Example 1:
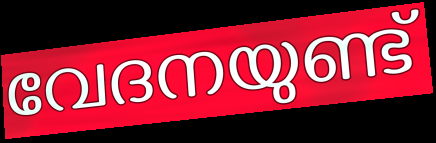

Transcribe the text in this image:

വേദനയുണ്ട്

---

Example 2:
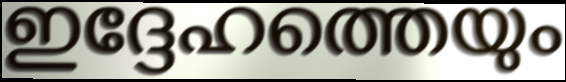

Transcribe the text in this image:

ഇദ്ദേഹത്തെയും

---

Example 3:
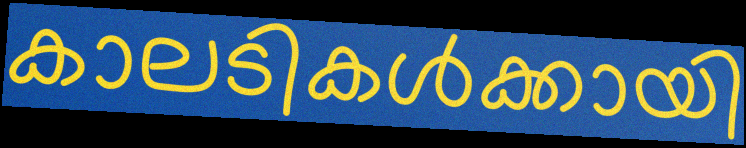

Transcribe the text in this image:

കാലടികൾക്കായി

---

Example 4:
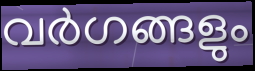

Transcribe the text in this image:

വർഗങ്ങളും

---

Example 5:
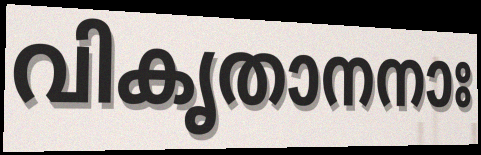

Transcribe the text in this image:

വികൃതാനനാഃ